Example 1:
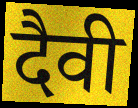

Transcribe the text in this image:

दैवी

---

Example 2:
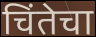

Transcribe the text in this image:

चिंतेचा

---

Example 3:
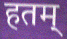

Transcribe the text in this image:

हतम्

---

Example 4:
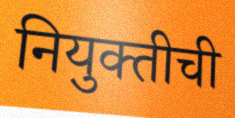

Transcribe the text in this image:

नियुक्तीची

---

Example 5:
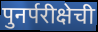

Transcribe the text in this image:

पुनर्परीक्षेची